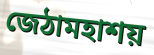
জেঠামহাশয়